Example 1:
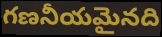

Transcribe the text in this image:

గణనీయమైనది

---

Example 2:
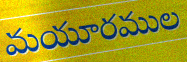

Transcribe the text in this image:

మయూరముల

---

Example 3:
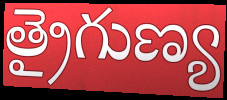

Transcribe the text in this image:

త్రైగుణ్య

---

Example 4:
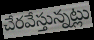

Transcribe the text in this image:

చేరవేస్తున్నట్లు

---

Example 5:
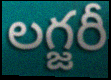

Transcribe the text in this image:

లగ్జరీ